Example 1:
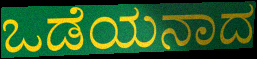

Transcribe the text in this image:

ಒಡೆಯನಾದ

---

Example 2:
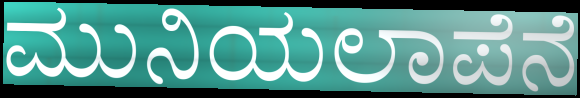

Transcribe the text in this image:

ಮುನಿಯಲಾಪೆನೆ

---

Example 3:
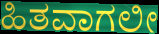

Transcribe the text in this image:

ಹಿತವಾಗಲೀ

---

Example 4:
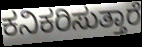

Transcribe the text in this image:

ಕನಿಕರಿಸುತ್ತಾರೆ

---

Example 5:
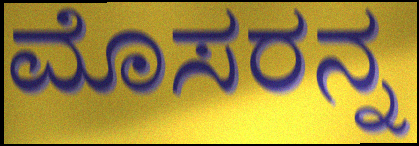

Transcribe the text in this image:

ಮೊಸರನ್ನ